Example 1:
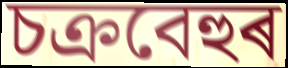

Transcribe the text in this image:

চক্ৰবেহুৰ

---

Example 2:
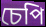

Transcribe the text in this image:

চেপি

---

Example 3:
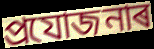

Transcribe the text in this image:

প্ৰযোজনাৰ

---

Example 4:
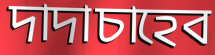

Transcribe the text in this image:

দাদাচাহেব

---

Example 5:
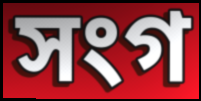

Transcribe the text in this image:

সংগ